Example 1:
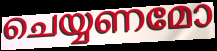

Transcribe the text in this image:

ചെയ്യണമോ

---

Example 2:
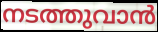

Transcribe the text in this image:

നടത്തുവാൻ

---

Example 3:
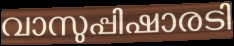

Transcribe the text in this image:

വാസുപ്പിഷാരടി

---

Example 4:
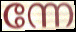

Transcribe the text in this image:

ന്നേ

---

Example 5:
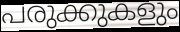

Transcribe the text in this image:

പരുക്കുകളും